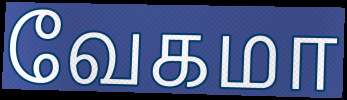
வேகமா